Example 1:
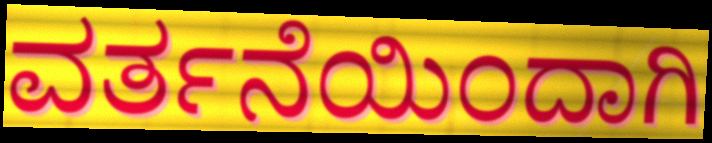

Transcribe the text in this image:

ವರ್ತನೆಯಿಂದಾಗಿ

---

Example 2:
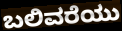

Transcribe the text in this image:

ಬಲಿವರೆಯು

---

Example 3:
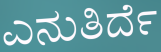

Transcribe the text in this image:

ಎನುತಿರ್ದೆ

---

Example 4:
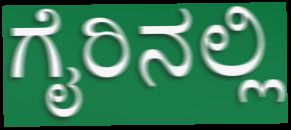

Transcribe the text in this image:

ಗೈರಿನಲ್ಲಿ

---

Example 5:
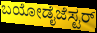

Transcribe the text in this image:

ಬಯೋಡೈಜೆಸ್ಟರ್